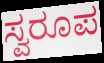
ಸ್ವರೂಪ